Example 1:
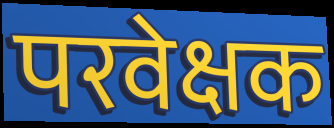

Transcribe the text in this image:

परवेक्षक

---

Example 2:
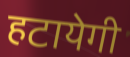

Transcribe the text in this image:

हटायेगी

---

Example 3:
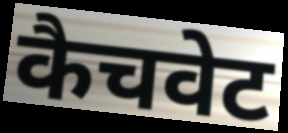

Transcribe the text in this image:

कैचवेट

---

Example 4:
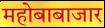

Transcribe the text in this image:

महोबाबाजार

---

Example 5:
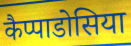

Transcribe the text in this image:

कैप्पाडोसिया